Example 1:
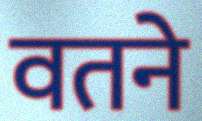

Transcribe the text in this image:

वतने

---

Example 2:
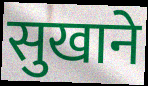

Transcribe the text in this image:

सुखाने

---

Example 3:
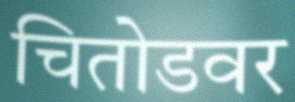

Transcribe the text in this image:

चितोडवर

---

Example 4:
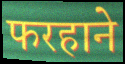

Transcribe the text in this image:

फरहाने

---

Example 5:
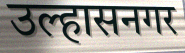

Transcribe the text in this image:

उल्हासनगर